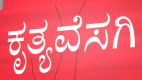
ಕೃತ್ಯವೆಸಗಿ